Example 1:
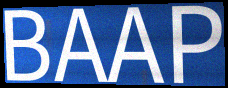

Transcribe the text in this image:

BAAP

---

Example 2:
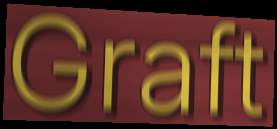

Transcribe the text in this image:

Graft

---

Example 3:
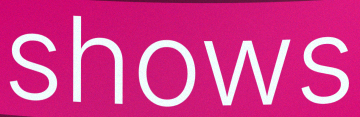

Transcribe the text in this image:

shows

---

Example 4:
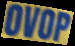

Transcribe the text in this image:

OVOP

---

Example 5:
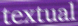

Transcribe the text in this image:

textual